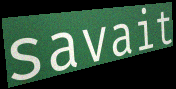
savait